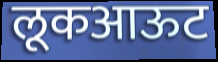
लूकआऊट